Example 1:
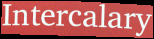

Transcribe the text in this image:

Intercalary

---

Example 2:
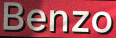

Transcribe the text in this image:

Benzo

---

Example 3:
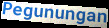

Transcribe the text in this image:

Pegunungan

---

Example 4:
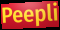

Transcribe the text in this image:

Peepli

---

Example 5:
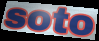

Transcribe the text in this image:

soto